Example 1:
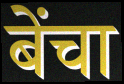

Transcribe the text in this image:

बेंचा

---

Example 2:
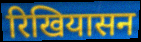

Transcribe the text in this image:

रिखियासन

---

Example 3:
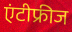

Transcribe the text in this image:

एंटीफ्रीज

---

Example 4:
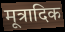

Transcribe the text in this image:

मूत्रादिक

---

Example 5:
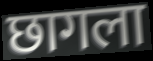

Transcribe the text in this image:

छागला